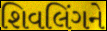
શિવલિંગને